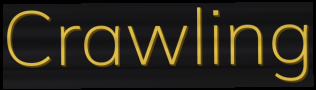
Crawling